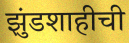
झुंडशाहीची